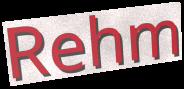
Rehm